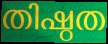
തിഷ്ഠത